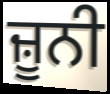
ਜ਼ੂਨੀ